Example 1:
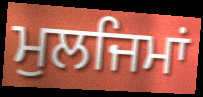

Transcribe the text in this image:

ਮੁਲਜਿਮਾਂ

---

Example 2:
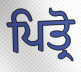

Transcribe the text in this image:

ਪਿਤ੍ਰੋ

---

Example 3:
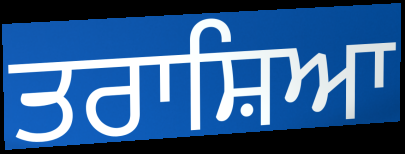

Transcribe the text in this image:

ਤਰਾਸ਼ਿਆ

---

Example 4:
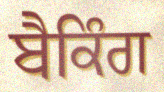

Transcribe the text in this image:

ਬੈਕਿੰਗ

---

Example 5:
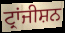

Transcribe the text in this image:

ਟ੍ਰਾਂਜੀਸ਼ਨ